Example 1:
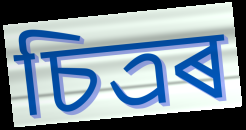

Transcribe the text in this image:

চিত্ৰৰ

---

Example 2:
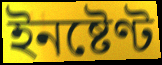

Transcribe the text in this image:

ইনষ্টেণ্ট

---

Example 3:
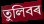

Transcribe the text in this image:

তুলিবৰ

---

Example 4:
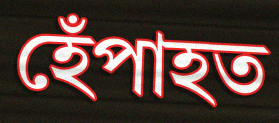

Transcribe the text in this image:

হেঁপাহত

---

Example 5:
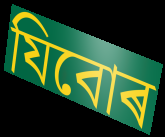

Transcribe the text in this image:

যিবোৰ